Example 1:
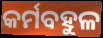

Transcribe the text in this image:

କର୍ମବହୁଳ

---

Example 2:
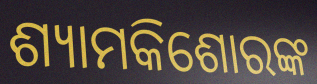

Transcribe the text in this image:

ଶ୍ୟାମକିଶୋରଙ୍କ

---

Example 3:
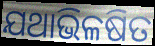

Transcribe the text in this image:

ଯଥାଭିଳଷିତ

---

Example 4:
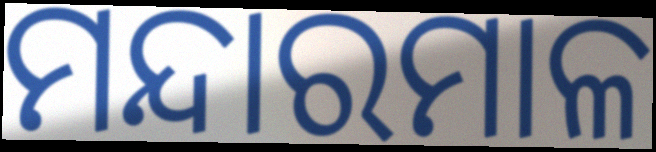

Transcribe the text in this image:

ମନ୍ଦାରମାଳ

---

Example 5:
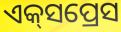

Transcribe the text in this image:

ଏକ୍‍ସପ୍ରେସ